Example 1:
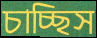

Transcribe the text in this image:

চাচ্ছিস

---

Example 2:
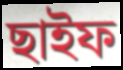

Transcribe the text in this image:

ছাইফ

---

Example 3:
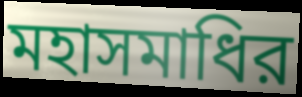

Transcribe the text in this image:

মহাসমাধির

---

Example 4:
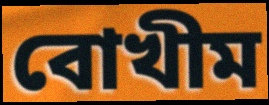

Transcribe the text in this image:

বোখীম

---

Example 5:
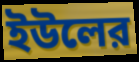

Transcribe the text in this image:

ইউলের